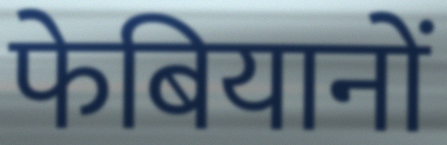
फेबियानों